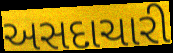
અસદાચારી